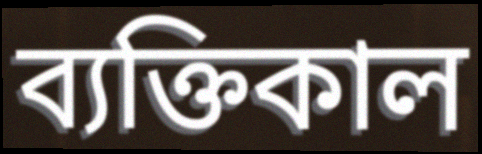
ব্যক্তিকাল